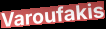
Varoufakis